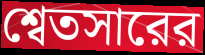
শ্বেতসারের